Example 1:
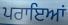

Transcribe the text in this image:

ਪਰਾਇਆਂ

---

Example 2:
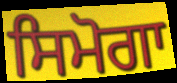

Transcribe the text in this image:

ਸਿਮੋਗਾ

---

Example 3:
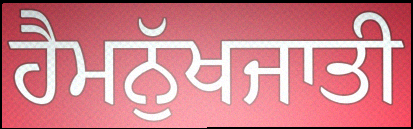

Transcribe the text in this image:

ਹੈਮਨੁੱਖਜਾਤੀ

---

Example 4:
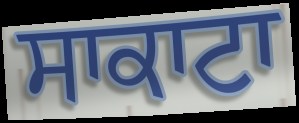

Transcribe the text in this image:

ਸਾਕਾਟਾ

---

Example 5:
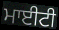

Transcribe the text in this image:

ਮਾਈਟੀ